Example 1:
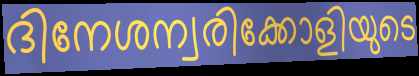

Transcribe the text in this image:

ദിനേശന്വരിക്കോളിയുടെ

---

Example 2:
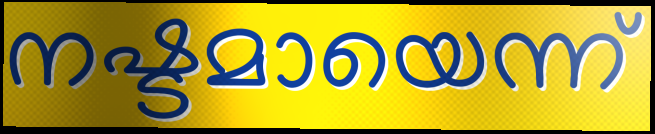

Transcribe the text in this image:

നഷ്ടമായെന്ന്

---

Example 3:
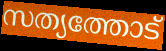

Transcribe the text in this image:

സത്യത്തോട്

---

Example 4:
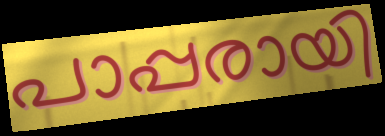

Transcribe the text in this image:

പാപ്പരായി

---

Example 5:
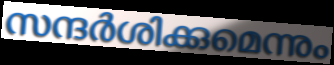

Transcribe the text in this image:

സന്ദർശിക്കുമെന്നും